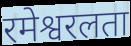
रमेश्वरलता